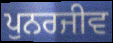
ਪੁਨਰਜੀਵ